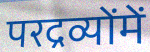
परद्रव्योंमें